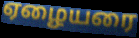
ஏழையரை